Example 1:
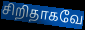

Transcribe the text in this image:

சிறிதாகவே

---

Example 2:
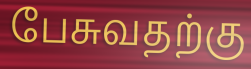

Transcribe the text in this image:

பேசுவதற்கு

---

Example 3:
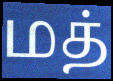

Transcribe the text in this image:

மத்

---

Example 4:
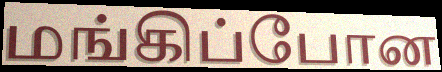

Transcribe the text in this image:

மங்கிப்போன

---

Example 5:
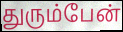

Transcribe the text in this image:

துரும்பேன்